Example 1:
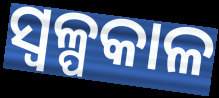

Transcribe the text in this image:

ସ୍ୱଳ୍ପକାଳ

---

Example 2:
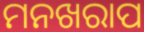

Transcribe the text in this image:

ମନଖରାପ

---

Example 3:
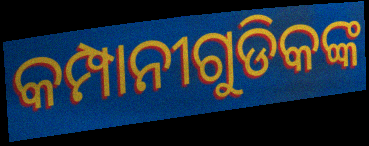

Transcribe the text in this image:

କମ୍ପାନୀଗୁଡିକଙ୍କ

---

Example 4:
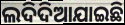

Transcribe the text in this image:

ଲଦିଦିଆଯାଇଛି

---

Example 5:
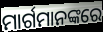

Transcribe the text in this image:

ମାର୍ଗମାନଙ୍କରେ